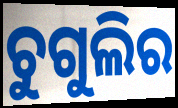
ଚୁଗୁଲିର